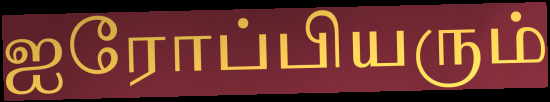
ஐரோப்பியரும்